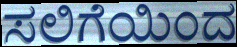
ಸಲಿಗೆಯಿಂದ